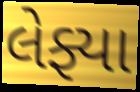
લેફ્યા